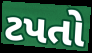
ટપતો